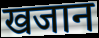
खजान